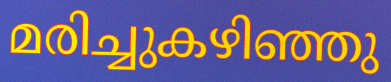
മരിച്ചുകഴിഞ്ഞു